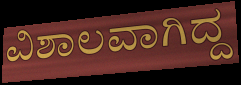
ವಿಶಾಲವಾಗಿದ್ದ